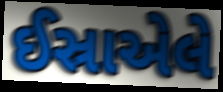
ઈસ્રાએલે